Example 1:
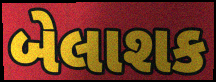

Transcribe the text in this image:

બેલાશક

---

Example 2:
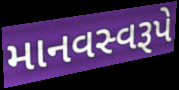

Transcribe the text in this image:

માનવસ્વરૂપે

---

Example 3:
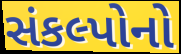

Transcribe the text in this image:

સંકલ્પોનો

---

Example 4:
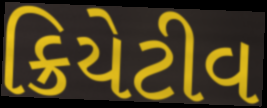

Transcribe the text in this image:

ક્રિયેટીવ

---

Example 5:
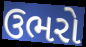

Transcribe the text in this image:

ઉભરો